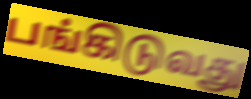
பங்கிடுவது